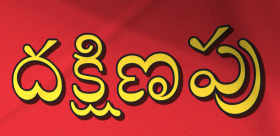
దక్షిణపు